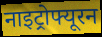
नाइट्रोफ्यूरन